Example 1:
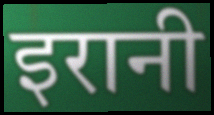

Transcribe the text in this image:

इरानी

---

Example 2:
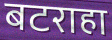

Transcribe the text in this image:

बटराहा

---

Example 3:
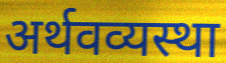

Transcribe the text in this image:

अर्थवव्यस्था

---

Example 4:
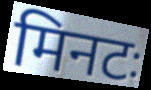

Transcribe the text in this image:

मिनटः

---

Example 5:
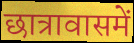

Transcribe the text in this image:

छात्रावासमें